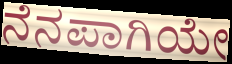
ನೆನಪಾಗಿಯೇ